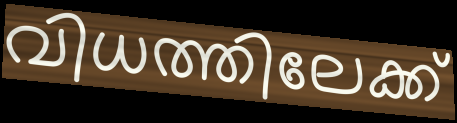
വിധത്തിലേക്ക്